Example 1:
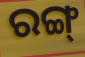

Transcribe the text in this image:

ରଙ୍ଗ୍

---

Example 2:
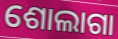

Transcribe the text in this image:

ଶୋଲାଗା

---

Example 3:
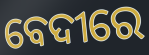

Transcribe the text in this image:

ବେଦୀରେ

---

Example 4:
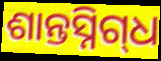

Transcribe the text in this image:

ଶାନ୍ତସ୍ନିଗ୍‌ଧ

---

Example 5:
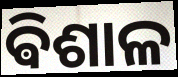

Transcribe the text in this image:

ଵିଶାଳ